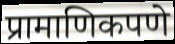
प्रामाणिकपणे